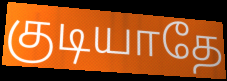
குடியாதே